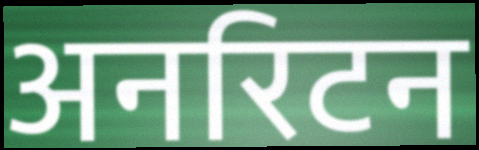
अनरिटन